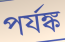
পর্যঙ্ক